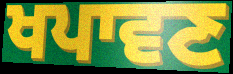
ਖਪਾਵਣ